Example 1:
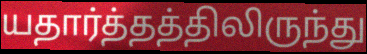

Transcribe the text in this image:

யதார்த்தத்திலிருந்து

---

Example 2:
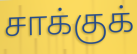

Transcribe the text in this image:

சாக்குக்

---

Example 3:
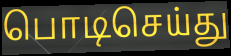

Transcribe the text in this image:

பொடிசெய்து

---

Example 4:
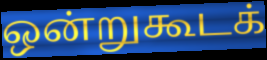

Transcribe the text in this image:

ஒன்றுகூடக்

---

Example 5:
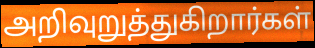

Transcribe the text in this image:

அறிவுறுத்துகிறார்கள்